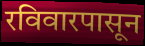
रविवारपासून